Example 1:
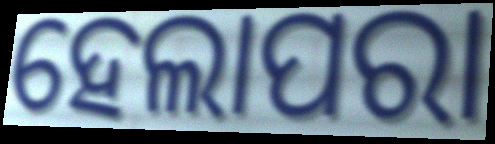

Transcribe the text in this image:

ହେଲାପରା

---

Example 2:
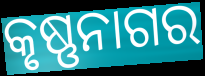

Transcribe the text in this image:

କୃଷ୍ଣନାଗର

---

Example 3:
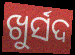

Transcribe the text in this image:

ଖୁର୍ସଦ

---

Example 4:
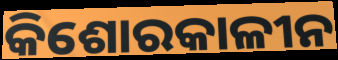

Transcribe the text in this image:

କିଶୋରକାଳୀନ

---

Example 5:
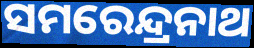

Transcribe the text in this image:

ସମରେନ୍ଦ୍ରନାଥ